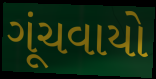
ગૂંચવાયો